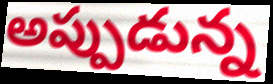
అప్పుడున్న